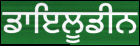
ਡਾਇਲੂਡੀਨ